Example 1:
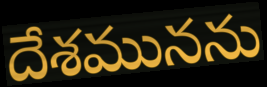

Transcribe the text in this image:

దేశమునను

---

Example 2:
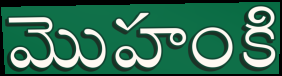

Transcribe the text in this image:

మొహంకి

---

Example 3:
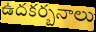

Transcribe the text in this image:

ఉదకర్బనాలు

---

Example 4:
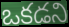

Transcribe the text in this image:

ఒకడని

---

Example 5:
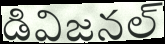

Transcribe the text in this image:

డివిజనల్